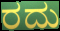
ರದು